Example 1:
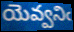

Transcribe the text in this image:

యెవ్వనిఁ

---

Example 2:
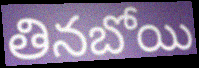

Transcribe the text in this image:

తినబోయి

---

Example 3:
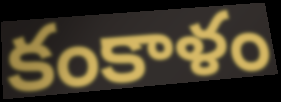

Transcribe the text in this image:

కంకాళం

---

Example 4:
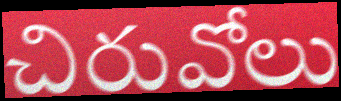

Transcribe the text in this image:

చిరువోలు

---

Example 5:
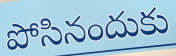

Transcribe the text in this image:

పోసినందుకు